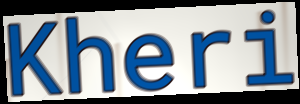
Kheri